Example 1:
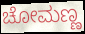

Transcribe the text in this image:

ಚೋಮಣ್ಣ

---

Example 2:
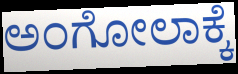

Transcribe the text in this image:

ಅಂಗೋಲಾಕ್ಕೆ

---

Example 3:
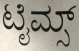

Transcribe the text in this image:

ಟೈಮ್ಸ್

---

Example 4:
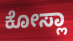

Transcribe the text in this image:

ಕೋಸ್ಲಾ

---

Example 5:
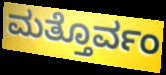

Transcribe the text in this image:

ಮತ್ತೊರ್ವಂ